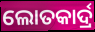
ଲୋତକାର୍ଦ୍ର